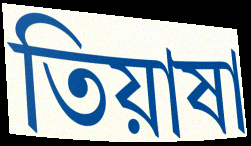
তিয়াষা